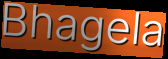
Bhagela